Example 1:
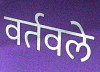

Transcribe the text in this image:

वर्तवले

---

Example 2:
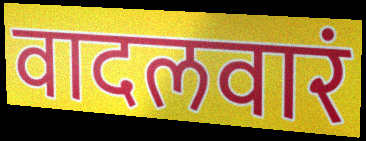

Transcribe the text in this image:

वादलवारं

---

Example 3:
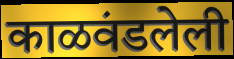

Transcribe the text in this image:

काळवंडलेली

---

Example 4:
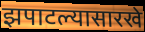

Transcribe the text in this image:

झपाटल्यासारखे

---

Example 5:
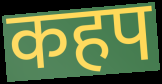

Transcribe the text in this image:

कहप